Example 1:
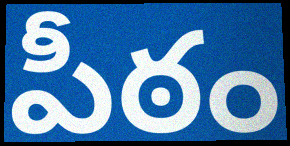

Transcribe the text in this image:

పీఠం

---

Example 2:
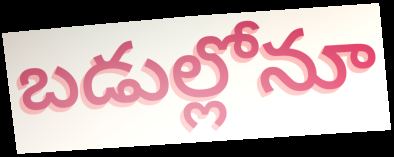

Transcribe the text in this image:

బడుల్లోనూ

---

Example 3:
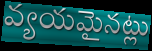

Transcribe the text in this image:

వ్యయమైనట్లు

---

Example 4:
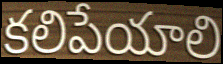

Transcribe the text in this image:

కలిపేయాలి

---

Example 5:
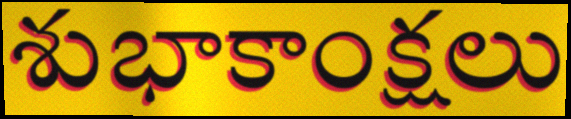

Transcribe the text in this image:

శుభాకాంక్షలు